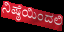
ನಿಷ್ಠೆಯಿಂದಲಿ